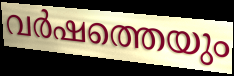
വർഷത്തെയും